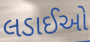
લડાઈઓ